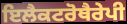
ਇਲੈਕਟਰੋਥੈਰੇਪੀ